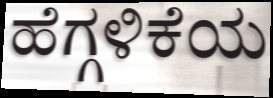
ಹೆಗ್ಗಳಿಕೆಯ